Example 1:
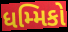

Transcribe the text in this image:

ધમ્મિકો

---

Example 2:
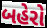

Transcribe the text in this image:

બહેરો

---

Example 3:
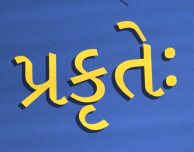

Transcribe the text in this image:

પ્રકૃતેઃ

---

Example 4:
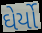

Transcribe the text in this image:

ઘેર્યો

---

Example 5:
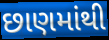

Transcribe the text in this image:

છાણમાંથી